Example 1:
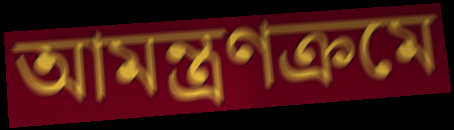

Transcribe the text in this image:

আমন্ত্ৰণক্ৰমে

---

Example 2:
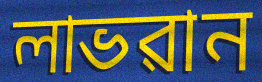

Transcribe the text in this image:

লাভৱান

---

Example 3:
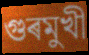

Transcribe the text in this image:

গুৰমুখী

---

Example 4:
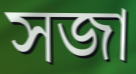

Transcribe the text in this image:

সজা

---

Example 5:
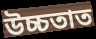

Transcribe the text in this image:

উচ্চতাত